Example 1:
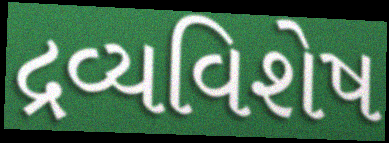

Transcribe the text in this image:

દ્રવ્યવિશેષ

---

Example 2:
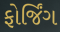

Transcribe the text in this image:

ફોર્જિંગ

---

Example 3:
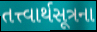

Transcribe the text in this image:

તત્ત્વાર્થસૂત્રના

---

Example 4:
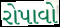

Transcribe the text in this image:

રોપાવો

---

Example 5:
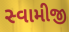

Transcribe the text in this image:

સ્વામીજી